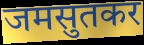
जमसुतकर